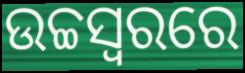
ଉଚ୍ଚସ୍ୱରରେ